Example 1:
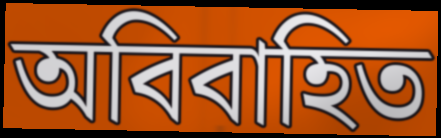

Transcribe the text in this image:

অবিবাহিত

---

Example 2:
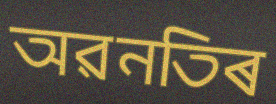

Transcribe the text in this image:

অৱনতিৰ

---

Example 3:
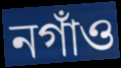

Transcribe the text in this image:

নগাঁও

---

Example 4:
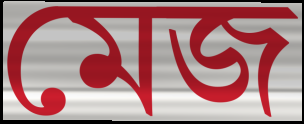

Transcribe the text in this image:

মেজ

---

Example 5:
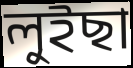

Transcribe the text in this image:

লুইছা